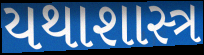
યથાશાસ્‍ત્ર